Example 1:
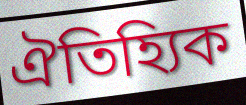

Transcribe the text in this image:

ঐতিহ্যিক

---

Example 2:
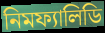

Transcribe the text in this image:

নিমফ্যালিডি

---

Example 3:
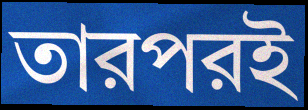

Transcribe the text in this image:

তারপরই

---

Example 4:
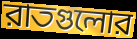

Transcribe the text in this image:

রাতগুলোর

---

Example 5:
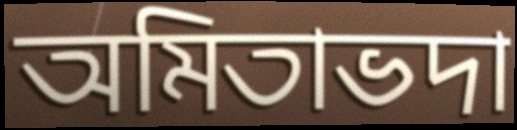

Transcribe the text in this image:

অমিতাভদা